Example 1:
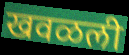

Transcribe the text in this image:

खवळली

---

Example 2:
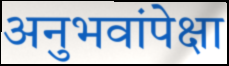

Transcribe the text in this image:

अनुभवांपेक्षा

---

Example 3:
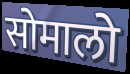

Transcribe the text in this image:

सोमालो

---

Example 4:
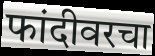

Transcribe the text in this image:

फांदीवरचा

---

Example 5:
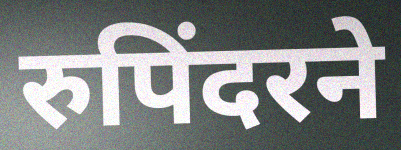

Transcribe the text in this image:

रुपिंदरने